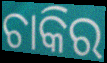
ଚାକିର